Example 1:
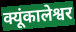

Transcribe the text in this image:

क्यूंकालेश्वर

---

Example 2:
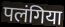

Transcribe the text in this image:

पलंगिया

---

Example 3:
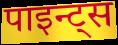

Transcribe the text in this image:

पाइन्ट्स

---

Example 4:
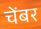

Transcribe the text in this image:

चेंबर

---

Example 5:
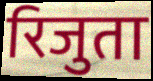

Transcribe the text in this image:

रिजुता